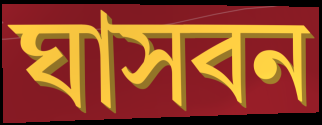
ঘাসবন